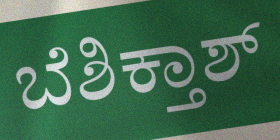
ಬೆಶಿಕ್ತಾಶ್